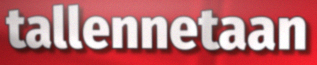
tallennetaan